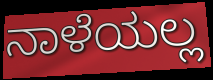
ನಾಳೆಯಲ್ಲ